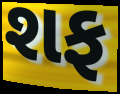
શફ